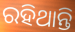
ରହିଥାନ୍ତି